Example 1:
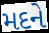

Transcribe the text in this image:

મદને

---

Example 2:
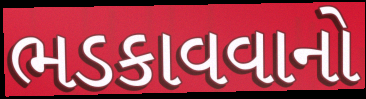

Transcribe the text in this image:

ભડકાવવાનો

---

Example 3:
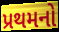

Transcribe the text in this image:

પ્રથમનો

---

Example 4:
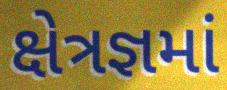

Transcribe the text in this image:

ક્ષેત્રજ્ઞમાં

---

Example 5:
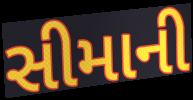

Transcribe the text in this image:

સીમાની